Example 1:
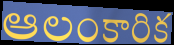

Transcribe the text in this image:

ఆలంకారిక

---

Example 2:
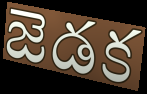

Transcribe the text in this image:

జెడక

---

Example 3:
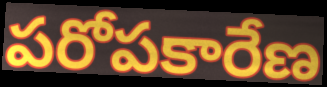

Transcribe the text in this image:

పరోపకారేణ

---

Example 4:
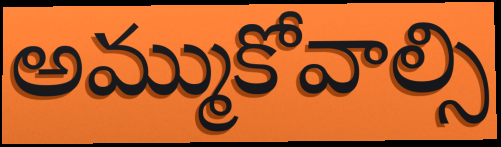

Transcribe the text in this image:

అమ్ముకోవాల్సి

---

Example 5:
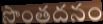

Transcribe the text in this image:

సొంతదనం